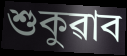
শুকুৱাব